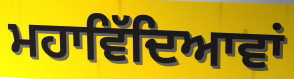
ਮਹਾਵਿੱਦਿਆਵਾਂ